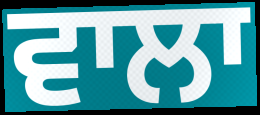
ਵਾਲਾ